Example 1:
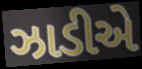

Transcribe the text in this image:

ઝાડીએ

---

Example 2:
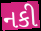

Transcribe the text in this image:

નકી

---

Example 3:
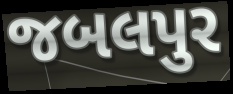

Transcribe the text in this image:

જબલપુર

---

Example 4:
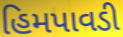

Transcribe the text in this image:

હિમપાવડી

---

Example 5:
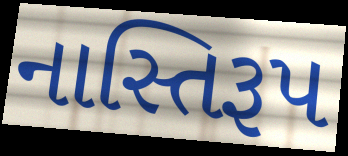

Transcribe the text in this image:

નાસ્તિરૂપ